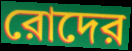
রোদের